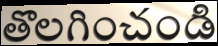
తొలగించండి